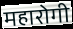
महारोगी